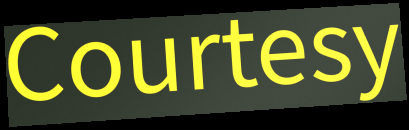
Courtesy